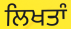
ਲਿਖਤਾੰ